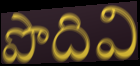
పొదివి